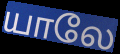
யாலே